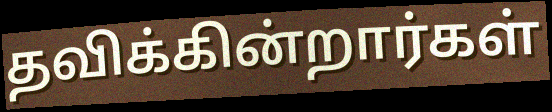
தவிக்கின்றார்கள்